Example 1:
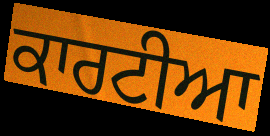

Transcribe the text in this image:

ਕਾਰਟੀਆ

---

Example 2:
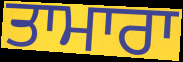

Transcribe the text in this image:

ਤਾਮਾਰਾ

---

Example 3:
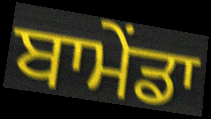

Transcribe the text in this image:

ਬਾਮੇਂਡਾ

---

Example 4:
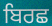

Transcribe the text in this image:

ਬਿਰਛ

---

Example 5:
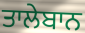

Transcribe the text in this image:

ਤਾਲੇਬਾਨ